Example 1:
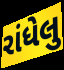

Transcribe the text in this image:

રાંધેલુ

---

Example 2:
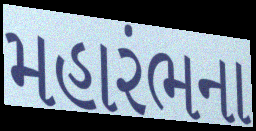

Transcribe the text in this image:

મહારંભના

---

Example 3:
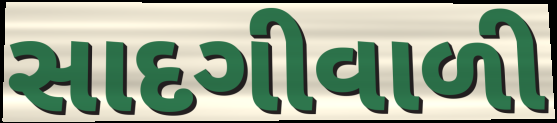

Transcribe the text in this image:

સાદગીવાળી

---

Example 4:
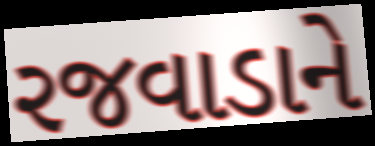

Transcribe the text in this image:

રજવાડાને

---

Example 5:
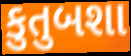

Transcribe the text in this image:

કુતુબશા